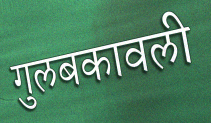
गुलबकावली